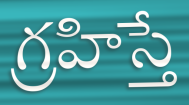
గ్రహిస్తే